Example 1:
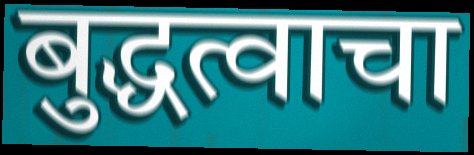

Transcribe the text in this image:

बुद्धत्वाचा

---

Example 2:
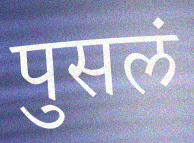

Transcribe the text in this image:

पुसलं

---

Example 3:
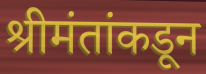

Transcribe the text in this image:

श्रीमंतांकडून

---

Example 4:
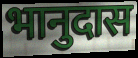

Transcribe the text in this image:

भानुदास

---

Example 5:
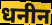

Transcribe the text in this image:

धनीन